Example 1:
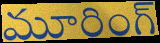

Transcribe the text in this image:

మూరింగ్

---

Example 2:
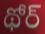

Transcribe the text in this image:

థోర్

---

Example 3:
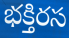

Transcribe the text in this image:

భక్తిరస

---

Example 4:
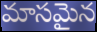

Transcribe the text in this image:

మాసమైన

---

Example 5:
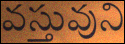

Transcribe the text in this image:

వస్తువుని